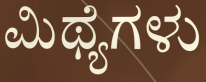
ಮಿಥ್ಯೆಗಳು